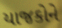
યાજકોને